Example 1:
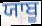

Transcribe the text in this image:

ਯਾਬੂ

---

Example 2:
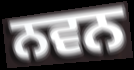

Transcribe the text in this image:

ਨਵਨ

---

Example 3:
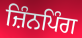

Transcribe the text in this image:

ਜ਼ਿੰਨਪਿੰਗ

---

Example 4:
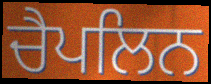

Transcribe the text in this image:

ਚੈਪਲਿਨ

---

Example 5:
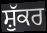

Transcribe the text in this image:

ਸ਼ੁੱਕਰ